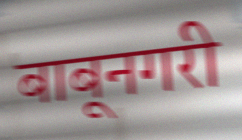
बाबूनगरी